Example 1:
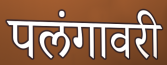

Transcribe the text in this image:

पलंगावरी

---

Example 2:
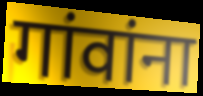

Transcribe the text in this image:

गांवांना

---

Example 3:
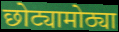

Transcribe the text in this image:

छोट्यामोठ्या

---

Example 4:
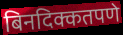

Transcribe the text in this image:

बिनदिक्कतपणे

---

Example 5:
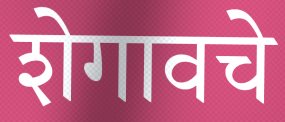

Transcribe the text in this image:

शेगावचे